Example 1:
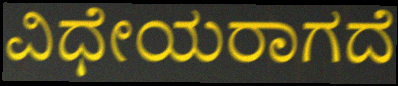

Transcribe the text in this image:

ವಿಧೇಯರಾಗದೆ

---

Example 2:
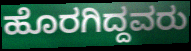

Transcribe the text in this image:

ಹೊರಗಿದ್ದವರು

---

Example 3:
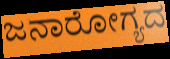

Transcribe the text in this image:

ಜನಾರೋಗ್ಯದ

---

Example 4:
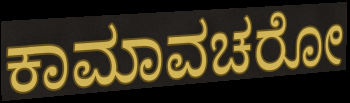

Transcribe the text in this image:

ಕಾಮಾವಚರೋ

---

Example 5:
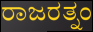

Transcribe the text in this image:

ರಾಜರತ್ನಂ